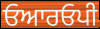
ਓਆਰਓਪੀ